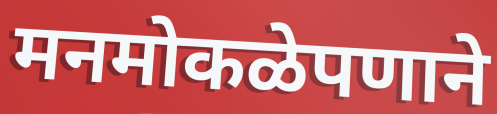
मनमोकळेपणाने